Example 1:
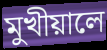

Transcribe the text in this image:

মুখীয়ালে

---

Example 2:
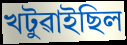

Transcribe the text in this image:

খটুৱাইছিল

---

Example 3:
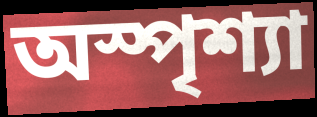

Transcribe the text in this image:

অস্পৃশ্যা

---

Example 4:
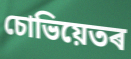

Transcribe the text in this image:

চোভিয়েতৰ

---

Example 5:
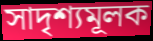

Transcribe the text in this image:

সাদৃশ্যমূলক